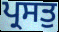
ਪ੍ਰਸਤੁ